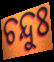
ଚନ୍ଦୁଃ